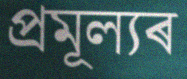
প্ৰমূল্যৰ